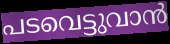
പടവെട്ടുവാൻ